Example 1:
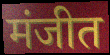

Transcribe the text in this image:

मंजीत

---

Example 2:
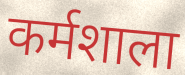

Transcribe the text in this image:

कर्मशाला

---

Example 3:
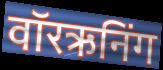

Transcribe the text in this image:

वॉरऋनिंग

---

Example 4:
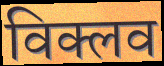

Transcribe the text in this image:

विक्लव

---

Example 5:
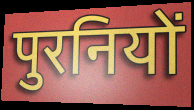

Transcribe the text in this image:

पुरनियों